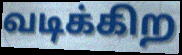
வடிக்கிற